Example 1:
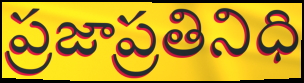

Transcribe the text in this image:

ప్రజాప్రతినిధి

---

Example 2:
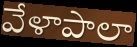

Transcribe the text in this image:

వేళాపాలా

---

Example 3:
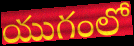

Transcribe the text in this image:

యుగంలో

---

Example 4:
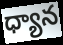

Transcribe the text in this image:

ధ్యాన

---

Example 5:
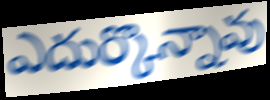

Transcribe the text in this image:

ఎదుర్కొన్నావు